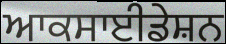
ਆਕਸਾਈਡੇਸ਼ਨ